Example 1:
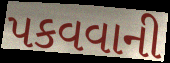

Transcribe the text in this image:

પકવવાની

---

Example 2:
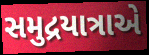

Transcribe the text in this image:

સમુદ્રયાત્રાએ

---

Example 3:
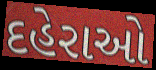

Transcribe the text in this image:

દહેરાઓ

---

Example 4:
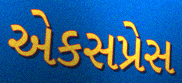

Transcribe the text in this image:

એકસપ્રેસ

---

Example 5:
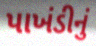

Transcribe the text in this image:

પાખંડીનું